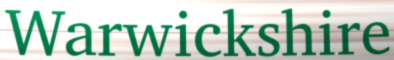
Warwickshire